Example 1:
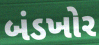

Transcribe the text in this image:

બંડખોર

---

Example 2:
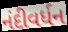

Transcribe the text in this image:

નંદીવર્ધન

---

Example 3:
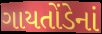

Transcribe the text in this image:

ગાયતોંડેનાં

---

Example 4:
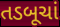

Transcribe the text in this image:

તડબૂચાં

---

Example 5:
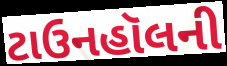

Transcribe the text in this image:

ટાઉનહૉલની